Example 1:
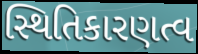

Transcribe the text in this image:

સ્થિતિકારણત્વ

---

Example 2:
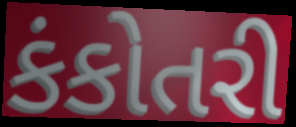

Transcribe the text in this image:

કંકોતરી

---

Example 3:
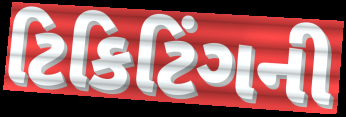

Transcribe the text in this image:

ટિકિટિંગની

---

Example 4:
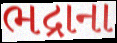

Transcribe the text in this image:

ભદ્રાના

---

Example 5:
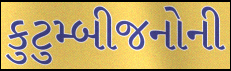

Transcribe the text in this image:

કુટુમ્બીજનોની